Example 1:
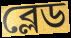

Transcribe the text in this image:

ব্লেড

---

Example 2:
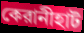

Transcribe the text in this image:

কেরানীহাট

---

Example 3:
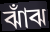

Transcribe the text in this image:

ঝাঁঝ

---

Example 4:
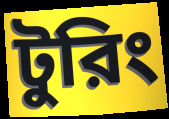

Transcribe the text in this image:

টুরিং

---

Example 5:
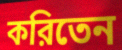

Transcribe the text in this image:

করিতেন